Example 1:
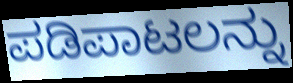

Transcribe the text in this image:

ಪಡಿಪಾಟಲನ್ನು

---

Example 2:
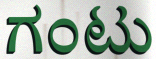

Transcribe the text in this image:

ಗಂಟು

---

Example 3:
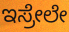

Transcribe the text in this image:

ಇಸ್ರೇಲೇ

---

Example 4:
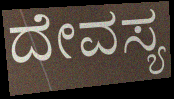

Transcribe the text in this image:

ದೇವಸ್ಯ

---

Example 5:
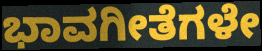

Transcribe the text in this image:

ಭಾವಗೀತೆಗಳೇ